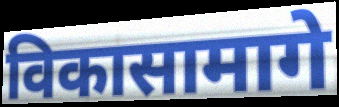
विकासामागे